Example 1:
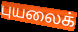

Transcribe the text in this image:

புயலைக்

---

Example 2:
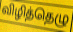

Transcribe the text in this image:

விழித்தெழு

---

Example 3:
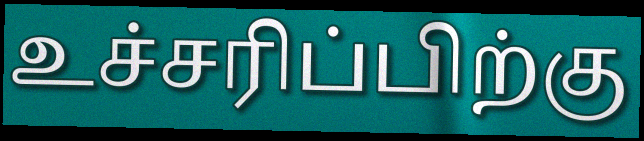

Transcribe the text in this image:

உச்சரிப்பிற்கு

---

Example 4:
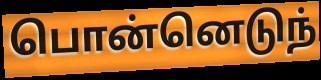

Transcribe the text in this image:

பொன்னெடுந்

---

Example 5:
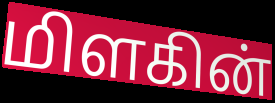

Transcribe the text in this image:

மிளகின்